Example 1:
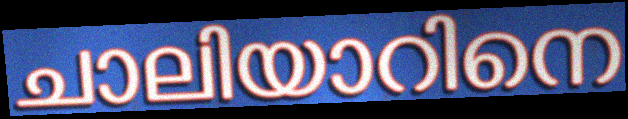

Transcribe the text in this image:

ചാലിയാറിനെ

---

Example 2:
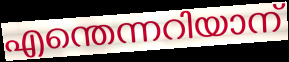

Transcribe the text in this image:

എന്തെന്നറിയാന്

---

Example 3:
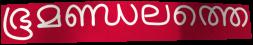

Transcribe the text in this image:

ഭൂമണ്ഡലത്തെ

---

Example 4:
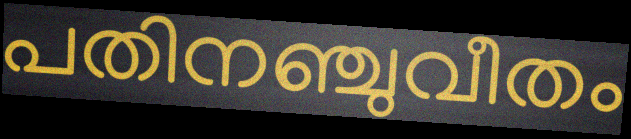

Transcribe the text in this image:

പതിനഞ്ചുവീതം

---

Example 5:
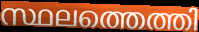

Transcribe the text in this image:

സ്ഥലത്തെത്തി